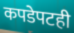
कपडेपटही